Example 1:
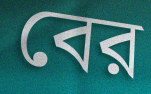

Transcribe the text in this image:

বের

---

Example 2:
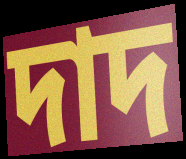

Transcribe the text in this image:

দাদ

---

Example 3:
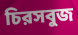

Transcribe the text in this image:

চিরসবুজ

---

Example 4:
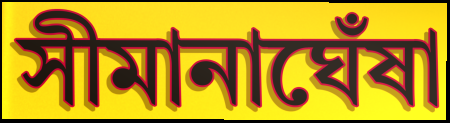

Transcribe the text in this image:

সীমানাঘেঁষা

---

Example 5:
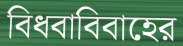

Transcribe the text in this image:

বিধবাবিবাহের